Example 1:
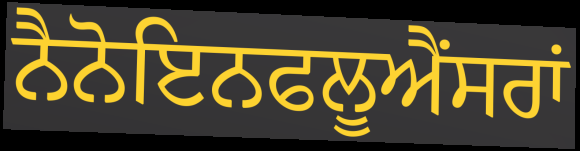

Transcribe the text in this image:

ਨੈਨੋਇਨਫਲੂਐਂਸਰਾਂ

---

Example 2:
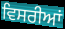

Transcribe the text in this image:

ਵਿਸਰੀਆਂ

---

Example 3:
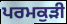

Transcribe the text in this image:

ਪਰਮਕੁੜੀ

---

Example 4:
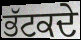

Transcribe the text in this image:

ਭੱਟਕਦੇ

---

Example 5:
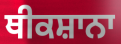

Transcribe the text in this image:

ਥੀਕਸ਼ਾਨਾ